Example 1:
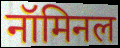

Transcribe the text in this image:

नॉमिनल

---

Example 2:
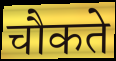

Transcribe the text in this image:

चौकते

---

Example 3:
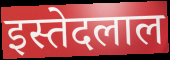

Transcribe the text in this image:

इस्तेदलाल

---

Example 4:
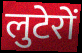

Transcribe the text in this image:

लुटेरों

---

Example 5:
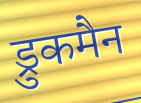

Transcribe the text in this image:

ड्रुकमैन